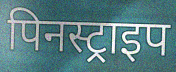
पिनस्ट्राइप